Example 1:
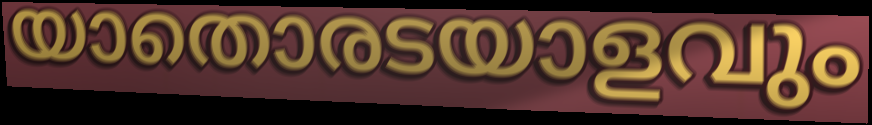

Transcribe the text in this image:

യാതൊരടയാളവും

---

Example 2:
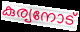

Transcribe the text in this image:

കുര്യനോട്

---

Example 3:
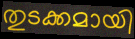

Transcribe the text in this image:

തുടക്കമായി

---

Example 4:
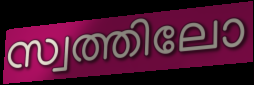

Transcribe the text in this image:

സ്വത്തിലോ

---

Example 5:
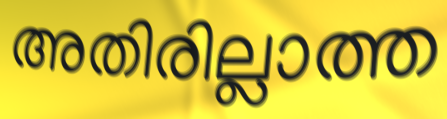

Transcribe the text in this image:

അതിരില്ലാത്ത